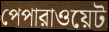
পেপারাওয়েট